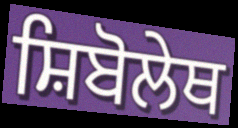
ਸ਼ਿਬੋਲੇਥ